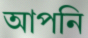
আপনি